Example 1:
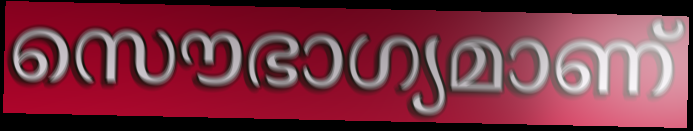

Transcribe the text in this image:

സൌഭാഗ്യമാണ്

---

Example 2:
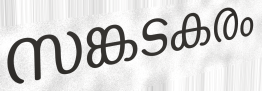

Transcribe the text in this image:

സങ്കടകരം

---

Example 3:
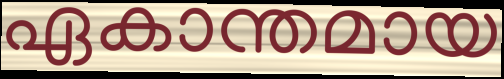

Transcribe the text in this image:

ഏകാന്തമായ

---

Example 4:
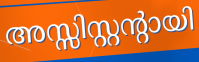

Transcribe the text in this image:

അസ്സിസ്റ്റന്റായി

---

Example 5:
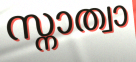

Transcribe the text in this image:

സ്നാത്വാ